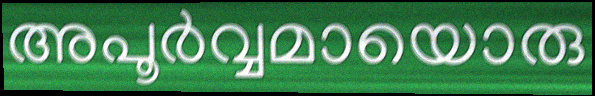
അപൂർവ്വമായൊരു